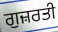
ਗੁਜ਼ਰਤੀ